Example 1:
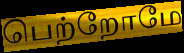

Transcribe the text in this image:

பெற்றோமே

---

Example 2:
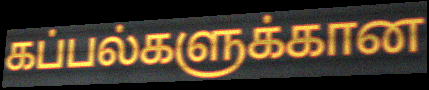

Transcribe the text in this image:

கப்பல்களுக்கான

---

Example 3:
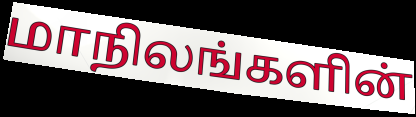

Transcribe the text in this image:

மாநிலங்களின்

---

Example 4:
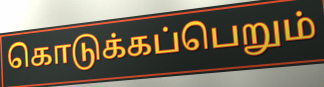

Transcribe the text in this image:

கொடுக்கப்பெறும்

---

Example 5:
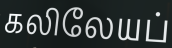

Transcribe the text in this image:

கலிலேயப்